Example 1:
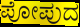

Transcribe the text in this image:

ಪೋಪುದ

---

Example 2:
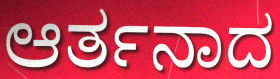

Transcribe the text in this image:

ಆರ್ತನಾದ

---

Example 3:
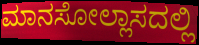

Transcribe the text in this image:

ಮಾನಸೋಲ್ಲಾಸದಲ್ಲಿ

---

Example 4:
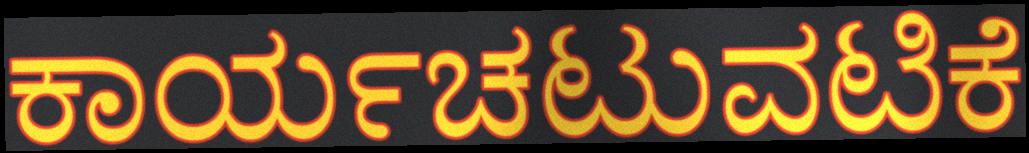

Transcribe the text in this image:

ಕಾರ್ಯಚಟುವಟಿಕೆ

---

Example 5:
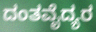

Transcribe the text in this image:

ದಂತವೈದ್ಯರ